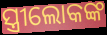
ସ୍ତ୍ରୀଲୋକଙ୍କ